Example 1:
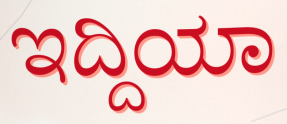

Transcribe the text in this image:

ಇದ್ದಿಯಾ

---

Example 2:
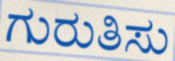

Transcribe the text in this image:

ಗುರುತಿಸು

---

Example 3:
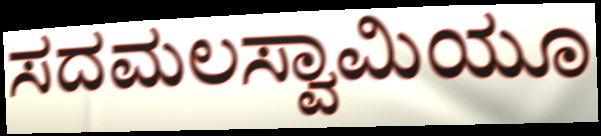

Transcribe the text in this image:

ಸದಮಲಸ್ವಾಮಿಯೂ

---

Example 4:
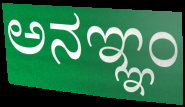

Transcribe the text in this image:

ಅನಞ್ಞಂ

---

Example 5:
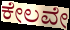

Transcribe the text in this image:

ಕೇಲವೇ